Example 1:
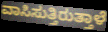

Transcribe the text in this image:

ವಾಸಿಸುತ್ತಿರುತ್ತಾಳೆ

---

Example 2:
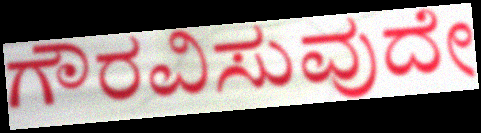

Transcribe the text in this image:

ಗೌರವಿಸುವುದೇ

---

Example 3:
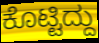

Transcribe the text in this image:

ಕೊಟ್ಟಿದ್ದು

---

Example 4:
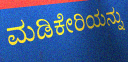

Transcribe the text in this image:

ಮಡಿಕೇರಿಯನ್ನು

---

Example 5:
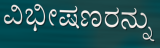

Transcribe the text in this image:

ವಿಭೀಷಣರನ್ನು